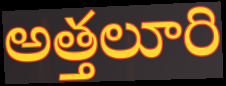
అత్తలూరి